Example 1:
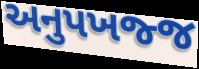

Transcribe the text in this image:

અનુપખજ્જ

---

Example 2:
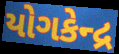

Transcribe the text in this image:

યોગકેન્દ્ર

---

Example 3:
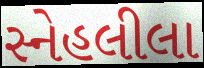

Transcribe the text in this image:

સ્નેહલીલા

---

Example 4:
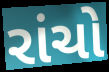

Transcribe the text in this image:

રાંચો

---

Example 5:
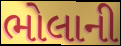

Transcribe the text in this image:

ભોલાની